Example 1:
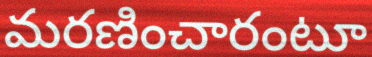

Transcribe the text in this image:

మరణించారంటూ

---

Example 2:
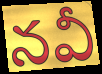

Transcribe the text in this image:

నవీ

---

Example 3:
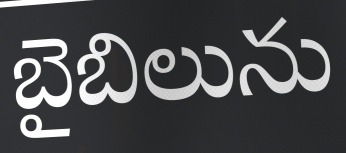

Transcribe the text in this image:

బైబిలును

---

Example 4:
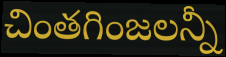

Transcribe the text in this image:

చింతగింజలన్నీ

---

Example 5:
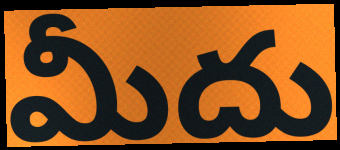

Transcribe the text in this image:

మీదు